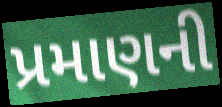
પ્રમાણની